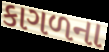
કાગળના